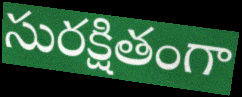
సురక్షితంగా